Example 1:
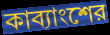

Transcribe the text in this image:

কাব্যাংশের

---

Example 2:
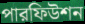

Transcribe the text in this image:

পারফিউশন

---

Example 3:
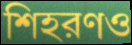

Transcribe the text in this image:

শিহরণও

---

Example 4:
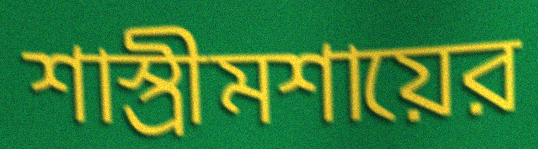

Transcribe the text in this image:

শাস্ত্রীমশায়ের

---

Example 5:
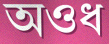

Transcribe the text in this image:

অওধ